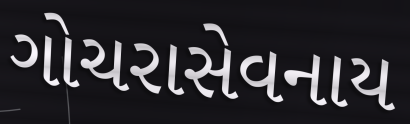
ગોચરાસેવનાય